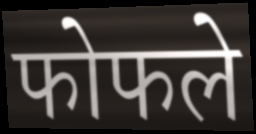
फोफले